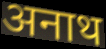
अनाथ